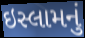
ઇસ્લામનું